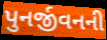
પુનર્જીવનની